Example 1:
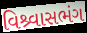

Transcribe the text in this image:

વિશ્ર્વાસભંગ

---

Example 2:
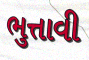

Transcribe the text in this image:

ભુત્તાવી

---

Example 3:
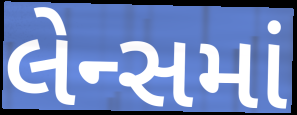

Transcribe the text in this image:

લેન્સમાં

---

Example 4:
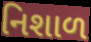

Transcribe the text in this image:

નિશાળ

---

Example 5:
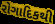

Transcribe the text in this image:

રોગાદિકથી